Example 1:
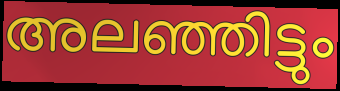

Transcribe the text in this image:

അലഞ്ഞിട്ടും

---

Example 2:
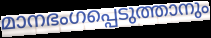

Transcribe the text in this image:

മാനഭംഗപ്പെടുത്താനും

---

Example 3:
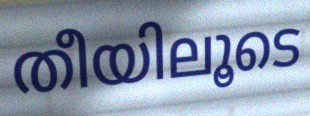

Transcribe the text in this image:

തീയിലൂടെ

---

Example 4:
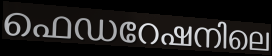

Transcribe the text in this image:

ഫെഡറേഷനിലെ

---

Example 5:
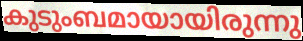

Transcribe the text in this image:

കുടുംബമായായിരുന്നു